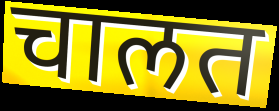
चालत